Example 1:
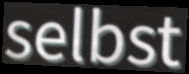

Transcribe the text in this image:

selbst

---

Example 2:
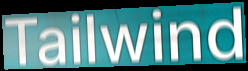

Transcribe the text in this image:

Tailwind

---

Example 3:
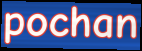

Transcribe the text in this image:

pochan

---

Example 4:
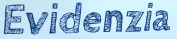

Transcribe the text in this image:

Evidenzia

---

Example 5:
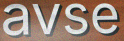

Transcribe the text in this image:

avse